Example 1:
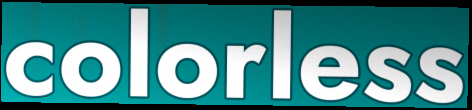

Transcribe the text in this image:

colorless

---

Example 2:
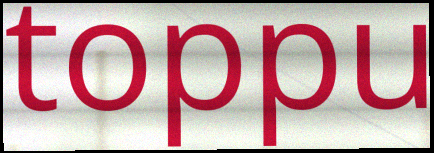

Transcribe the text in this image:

toppu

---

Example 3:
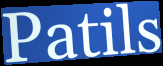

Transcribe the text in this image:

Patils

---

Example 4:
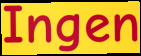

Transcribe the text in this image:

Ingen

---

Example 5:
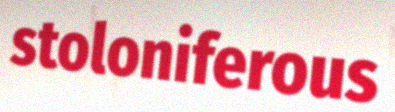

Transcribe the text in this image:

stoloniferous